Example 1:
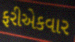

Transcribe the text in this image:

ફરીએકવાર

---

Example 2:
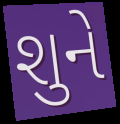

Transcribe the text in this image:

શુને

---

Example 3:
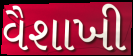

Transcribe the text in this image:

વૈશાખી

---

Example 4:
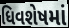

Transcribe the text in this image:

ધિવશેષમાં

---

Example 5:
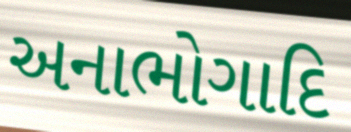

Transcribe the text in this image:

અનાભોગાદિ